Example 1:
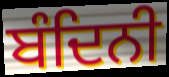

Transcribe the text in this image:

ਬੰਦਿਨੀ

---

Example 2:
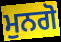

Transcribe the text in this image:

ਮੁਨਗੋ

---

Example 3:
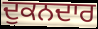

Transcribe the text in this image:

ਦੁਕਨਦਾਰ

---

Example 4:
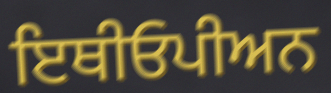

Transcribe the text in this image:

ਇਥੀਓਪੀਅਨ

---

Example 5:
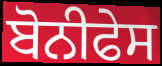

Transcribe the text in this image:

ਬੋਨੀਫੇਸ